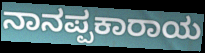
ನಾನಪ್ಪಕಾರಾಯ